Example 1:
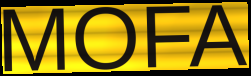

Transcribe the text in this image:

MOFA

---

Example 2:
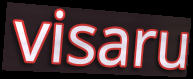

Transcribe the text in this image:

visaru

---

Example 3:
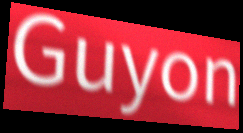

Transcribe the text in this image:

Guyon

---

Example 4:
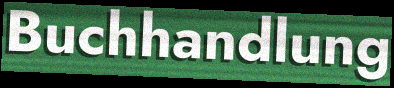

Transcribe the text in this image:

Buchhandlung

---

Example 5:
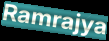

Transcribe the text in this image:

Ramrajya